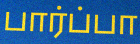
பார்ப்பா